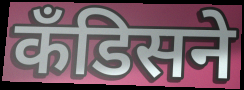
कँडिसने